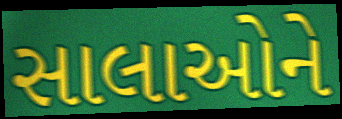
સાલાઓને